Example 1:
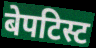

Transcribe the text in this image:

बेपटिस्ट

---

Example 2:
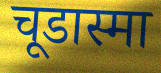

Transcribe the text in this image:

चूडास्मा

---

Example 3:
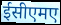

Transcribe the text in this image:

ईसीएमए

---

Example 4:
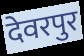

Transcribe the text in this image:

देवरपुर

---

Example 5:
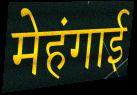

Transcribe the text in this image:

मेहंगाई